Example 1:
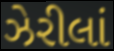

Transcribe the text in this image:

ઝેરીલાં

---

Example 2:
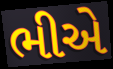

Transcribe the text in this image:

ભીએ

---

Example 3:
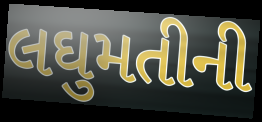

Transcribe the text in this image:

લઘુમતીની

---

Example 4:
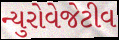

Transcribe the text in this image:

ન્યુરોવેજેટીવ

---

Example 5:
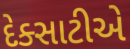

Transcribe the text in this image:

દેક્સાટીએ